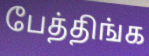
பேத்திங்க